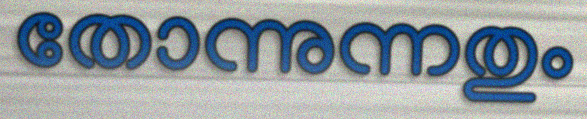
തോന്നുന്നതും